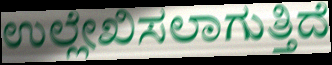
ಉಲ್ಲೇಖಿಸಲಾಗುತ್ತಿದೆ